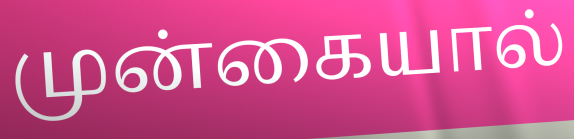
முன்கையால்